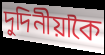
দুদিনীয়াকৈ